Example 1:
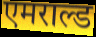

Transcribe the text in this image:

एमराल्‍ड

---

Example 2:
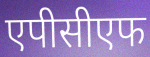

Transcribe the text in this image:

एपीसीएफ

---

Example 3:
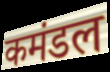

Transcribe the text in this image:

कमंडल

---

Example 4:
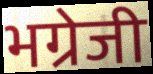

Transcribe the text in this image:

भग्रेजी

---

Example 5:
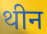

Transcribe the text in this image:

थीन